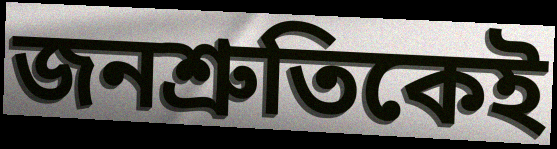
জনশ্রুতিকেই